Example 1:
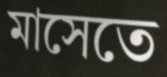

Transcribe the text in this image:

মাসেতে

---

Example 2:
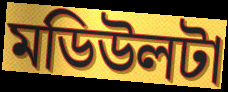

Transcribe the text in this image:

মডিউলটা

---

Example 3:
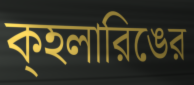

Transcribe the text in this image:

ক্হলারিঙের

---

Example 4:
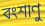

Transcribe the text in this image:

বংশাণু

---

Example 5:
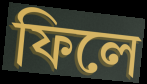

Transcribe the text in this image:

ফিলে